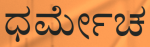
ಧರ್ಮೇಚ